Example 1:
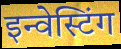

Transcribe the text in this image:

इन्वेस्टिंग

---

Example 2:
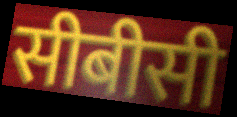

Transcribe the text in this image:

सीबीसी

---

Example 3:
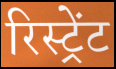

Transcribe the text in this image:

रिस्ट्रेंट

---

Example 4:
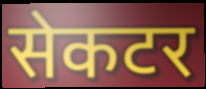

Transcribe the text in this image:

सेकटर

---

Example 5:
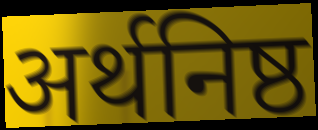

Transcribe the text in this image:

अर्थनिष्ठ